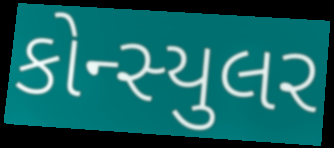
કોન્સ્યુલર